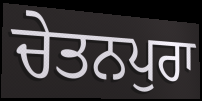
ਚੇਤਨਪੁਰਾ